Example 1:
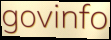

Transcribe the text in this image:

govinfo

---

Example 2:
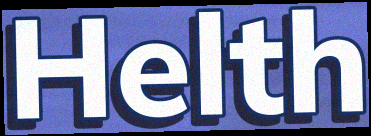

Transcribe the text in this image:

Helth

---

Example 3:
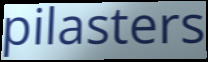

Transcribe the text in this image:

pilasters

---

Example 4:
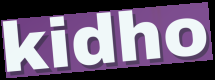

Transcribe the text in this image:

kidho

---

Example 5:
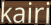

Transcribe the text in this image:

kairi